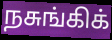
நசுங்கிக்